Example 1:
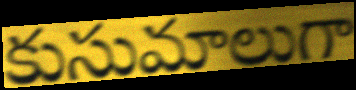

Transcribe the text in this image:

కుసుమాలుగా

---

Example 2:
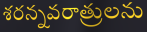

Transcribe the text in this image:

శరన్నవరాత్రులను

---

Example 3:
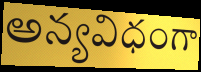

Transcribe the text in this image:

అన్యవిధంగా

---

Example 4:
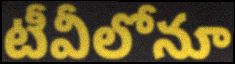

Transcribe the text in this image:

టీవీలోనూ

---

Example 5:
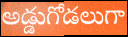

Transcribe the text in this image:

అడ్డుగోడలుగా